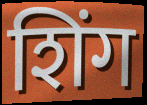
शिंग